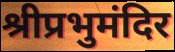
श्रीप्रभुमंदिर